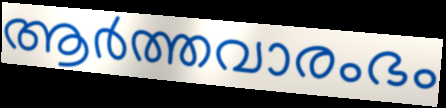
ആർത്തവാരംഭം